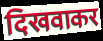
दिखवाकर